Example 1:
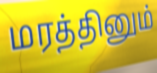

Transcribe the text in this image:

மரத்தினும்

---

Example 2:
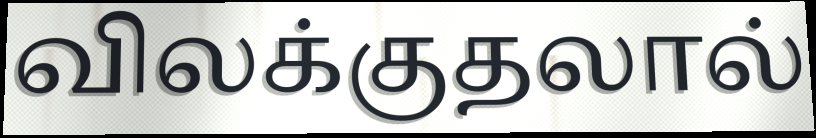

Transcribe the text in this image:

விலக்குதலால்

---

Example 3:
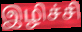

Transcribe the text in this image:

இழிச்சி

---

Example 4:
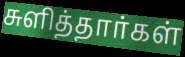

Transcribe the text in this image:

சுளித்தார்கள்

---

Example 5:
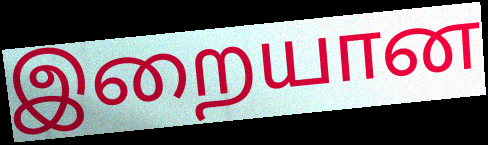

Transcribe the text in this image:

இறையான